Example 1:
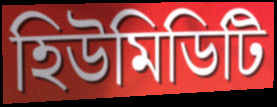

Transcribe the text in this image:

হিউমিডিটি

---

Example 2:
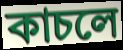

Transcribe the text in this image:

কাচলে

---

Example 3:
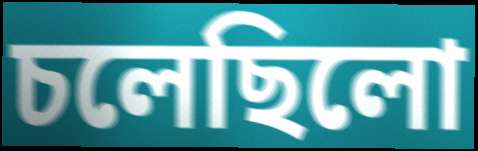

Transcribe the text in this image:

চলেছিলো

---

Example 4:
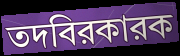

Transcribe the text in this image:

তদবিরকারক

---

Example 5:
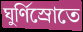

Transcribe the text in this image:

ঘুর্ণিস্রোতে